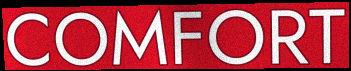
COMFORT